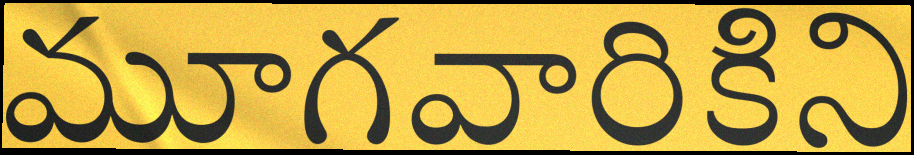
మూగవారికిని